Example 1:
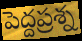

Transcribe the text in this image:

పెద్దప్రశ్న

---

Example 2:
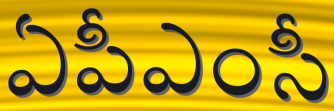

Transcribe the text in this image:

ఏపీఎంసీ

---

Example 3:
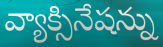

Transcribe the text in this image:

వ్యాక్సినేషన్ను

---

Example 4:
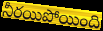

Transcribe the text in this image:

నీరయిపోయింది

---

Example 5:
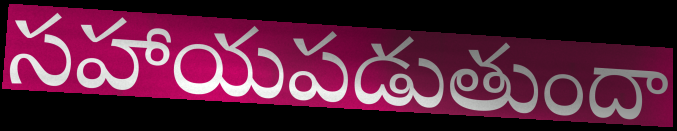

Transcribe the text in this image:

సహాయపడుతుందా